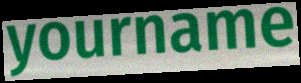
yourname